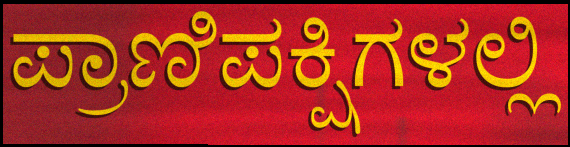
ಪ್ರಾಣಿಪಕ್ಷಿಗಳಲ್ಲಿ